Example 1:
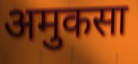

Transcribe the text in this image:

अमुकसा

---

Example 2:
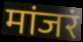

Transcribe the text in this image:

मांजरं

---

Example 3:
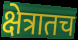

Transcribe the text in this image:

क्षेत्रातच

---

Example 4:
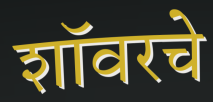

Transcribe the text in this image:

शॉवरचे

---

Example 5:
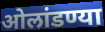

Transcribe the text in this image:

ओलांडण्या